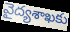
వైద్యశాఖకు